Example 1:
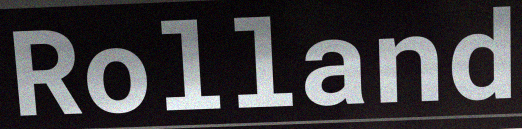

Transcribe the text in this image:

Rolland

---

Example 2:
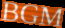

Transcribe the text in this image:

BGM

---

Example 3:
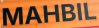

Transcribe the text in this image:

MAHBIL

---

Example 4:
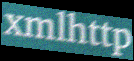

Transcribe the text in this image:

xmlhttp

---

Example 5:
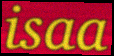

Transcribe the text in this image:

isaa